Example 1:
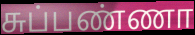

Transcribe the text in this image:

சுப்பண்ணா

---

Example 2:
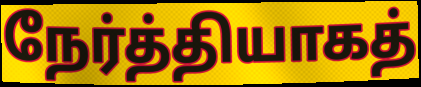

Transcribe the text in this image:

நேர்த்தியாகத்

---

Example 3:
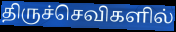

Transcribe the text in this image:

திருச்செவிகளில்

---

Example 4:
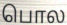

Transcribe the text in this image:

பொல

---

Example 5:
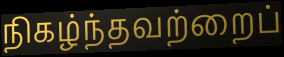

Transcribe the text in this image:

நிகழ்ந்தவற்றைப்